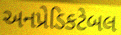
અનપ્રેડિકટેબલ